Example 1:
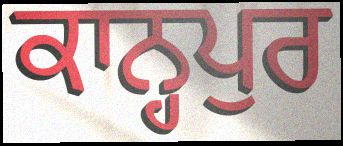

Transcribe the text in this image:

ਕਾਨ੍ਹਪੁਰ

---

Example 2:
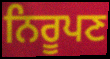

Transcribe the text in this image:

ਨਿਰੂਪਣ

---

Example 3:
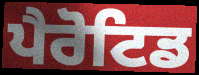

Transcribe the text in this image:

ਪੈਰੋਟਿਡ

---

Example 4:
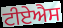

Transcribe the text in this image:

ਟੀਏਐਸ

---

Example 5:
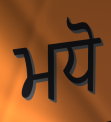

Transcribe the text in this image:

ਮਧੋ